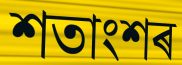
শতাংশৰ